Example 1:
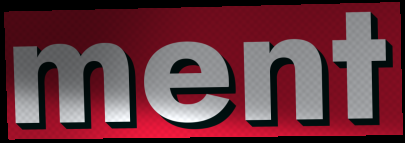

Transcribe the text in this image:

ment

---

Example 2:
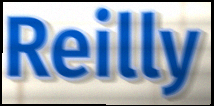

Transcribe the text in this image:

Reilly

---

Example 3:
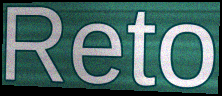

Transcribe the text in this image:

Reto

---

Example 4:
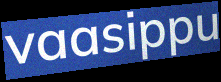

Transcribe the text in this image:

vaasippu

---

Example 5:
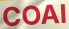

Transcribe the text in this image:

COAI